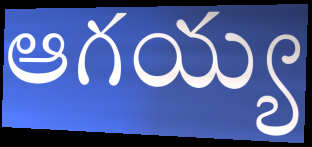
ఆగయ్య